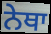
ਨੇਥਾ